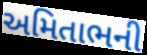
અમિતાભની